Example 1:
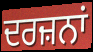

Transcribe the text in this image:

ਦਰਜ਼ਨਾਂ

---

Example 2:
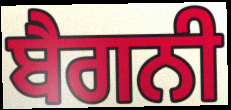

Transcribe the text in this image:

ਬੈਗਨੀ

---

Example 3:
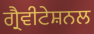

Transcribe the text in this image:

ਗ੍ਰੈਵੀਟੇਸ਼ਨਲ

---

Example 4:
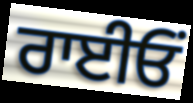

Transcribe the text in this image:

ਰਾਈਓਂ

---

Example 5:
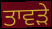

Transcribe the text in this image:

ਤਾਵੜੇ